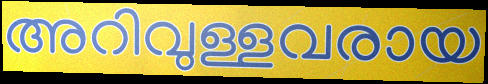
അറിവുള്ളവരായ